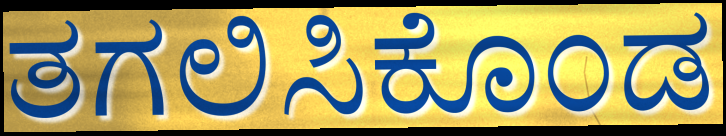
ತಗಲಿಸಿಕೊಂಡ